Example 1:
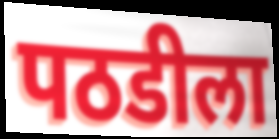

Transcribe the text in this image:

पठडीला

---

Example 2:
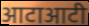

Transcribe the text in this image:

आटाआटी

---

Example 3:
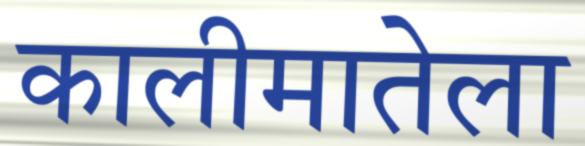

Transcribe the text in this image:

कालीमातेला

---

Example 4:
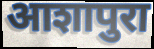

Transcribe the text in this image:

आशापुरा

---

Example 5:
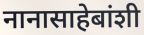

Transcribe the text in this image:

नानासाहेबांशी